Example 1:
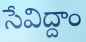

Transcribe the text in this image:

సేవిద్దాం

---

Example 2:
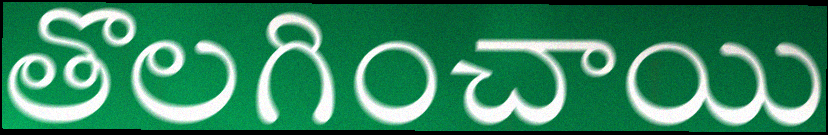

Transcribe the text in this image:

తొలగించాయి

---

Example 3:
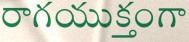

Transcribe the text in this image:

రాగయుక్తంగా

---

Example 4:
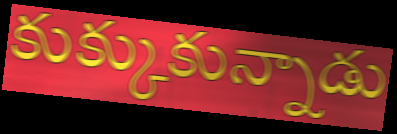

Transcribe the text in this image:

కుక్కుకున్నాడు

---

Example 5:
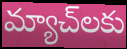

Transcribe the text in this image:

మ్యాచ్‌లకు